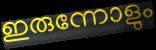
ഇരുന്നോളും